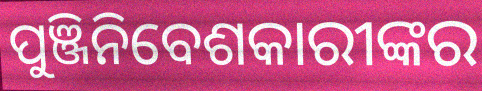
ପୁଞ୍ଜିନିବେଶକାରୀଙ୍କର